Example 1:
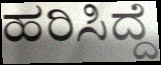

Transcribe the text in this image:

ಹರಿಸಿದ್ದೆ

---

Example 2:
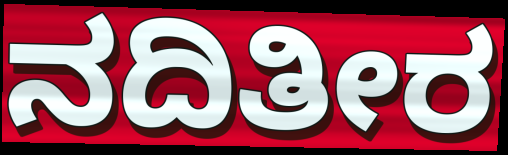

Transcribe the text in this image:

ನದಿತೀರ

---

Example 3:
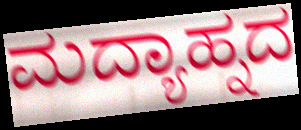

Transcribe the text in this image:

ಮದ್ಯಾಹ್ನದ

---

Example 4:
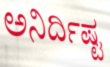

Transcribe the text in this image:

ಅನಿರ್ದಿಷ್ಟ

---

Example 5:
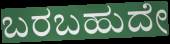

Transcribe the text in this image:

ಬರಬಹುದೇ